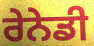
ਰੇਨੇਡੀ